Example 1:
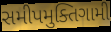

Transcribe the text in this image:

સમીપમુક્તિગામી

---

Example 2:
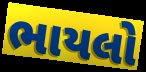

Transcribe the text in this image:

ભાયલો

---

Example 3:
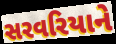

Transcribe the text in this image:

સરવરિયાને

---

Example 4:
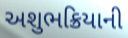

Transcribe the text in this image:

અશુભક્રિયાની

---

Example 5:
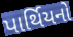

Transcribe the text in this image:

પાર્થિયનો